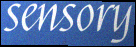
sensory